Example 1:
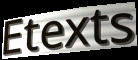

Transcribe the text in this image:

Etexts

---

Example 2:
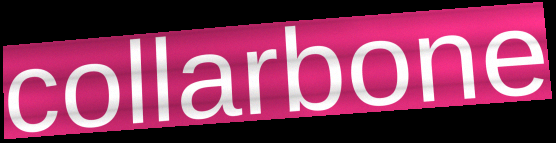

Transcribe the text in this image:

collarbone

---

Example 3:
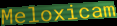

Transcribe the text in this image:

Meloxicam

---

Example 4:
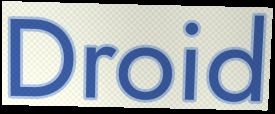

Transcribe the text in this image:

Droid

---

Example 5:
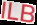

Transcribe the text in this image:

ILB